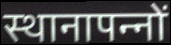
स्थानापन्नों